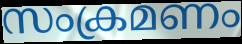
സംക്രമണം